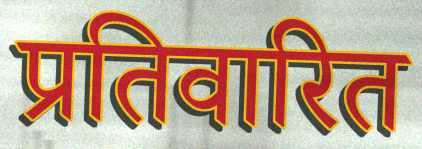
प्रतिवारित